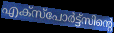
എക്സ്പോർട്ട്സിന്റെ